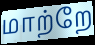
மாற்றே